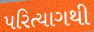
પરિત્યાગથી